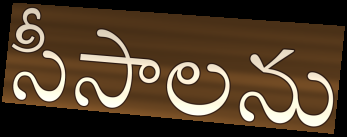
సీసాలను